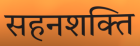
सहनशक्ति